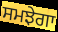
ਸਮਝੇਗਾ